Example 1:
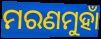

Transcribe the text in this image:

ମରଣମୁହାଁ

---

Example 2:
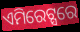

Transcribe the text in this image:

ଏମିରେଟ୍ସରେ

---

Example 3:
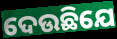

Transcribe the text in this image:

ଦେଉଛିଯେ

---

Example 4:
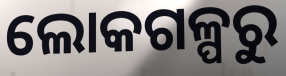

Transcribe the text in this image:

ଲୋକଗଳ୍ପରୁ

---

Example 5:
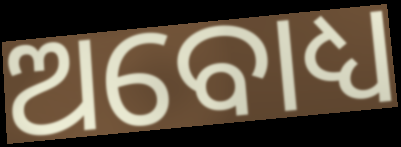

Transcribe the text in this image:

ଅବୋଧ୍ୟ